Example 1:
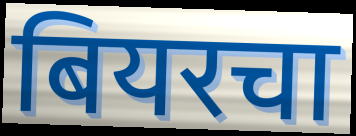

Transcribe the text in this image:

बियरचा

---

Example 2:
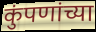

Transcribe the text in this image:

कुंपणांच्या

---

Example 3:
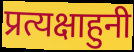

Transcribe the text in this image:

प्रत्यक्षाहुनी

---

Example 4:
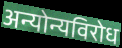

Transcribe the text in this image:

अन्योन्यविरोध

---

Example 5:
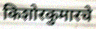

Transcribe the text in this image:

किशोरकुमारचे